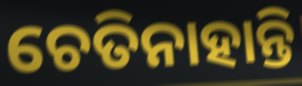
ଚେତିନାହାନ୍ତି